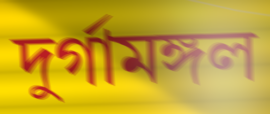
দুর্গামঙ্গল